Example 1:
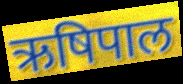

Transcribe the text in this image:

ऋषिपाल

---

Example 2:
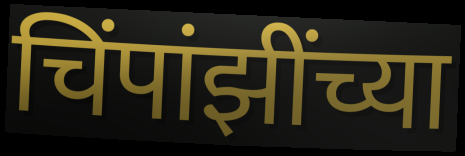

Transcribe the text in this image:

चिंपांझींच्या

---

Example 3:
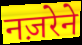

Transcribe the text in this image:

नज़रेने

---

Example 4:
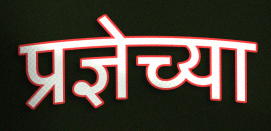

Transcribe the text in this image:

प्रज्ञेच्या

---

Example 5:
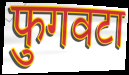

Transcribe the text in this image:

फुगवटा